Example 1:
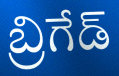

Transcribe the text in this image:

బ్రిగేడ్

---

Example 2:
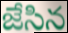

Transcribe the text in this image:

జేసిన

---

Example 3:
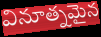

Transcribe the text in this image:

వినూత్నమైన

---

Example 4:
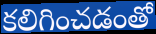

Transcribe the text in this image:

కలిగించడంతో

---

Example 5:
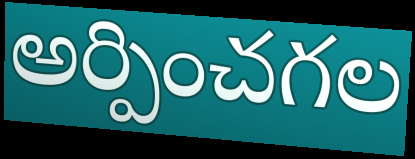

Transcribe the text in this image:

అర్పించగల